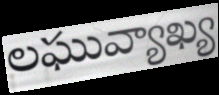
లఘువ్యాఖ్య